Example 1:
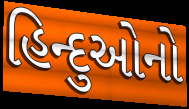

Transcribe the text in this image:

હિન્દુઓનો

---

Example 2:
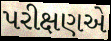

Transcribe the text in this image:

પરીક્ષણએ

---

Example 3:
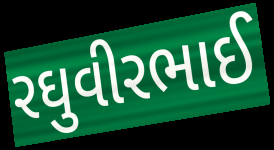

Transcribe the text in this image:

રઘુવીરભાઈ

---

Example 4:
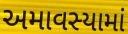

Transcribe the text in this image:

અમાવસ્યામાં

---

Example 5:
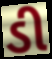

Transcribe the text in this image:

ડી